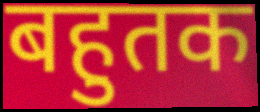
बहुतक